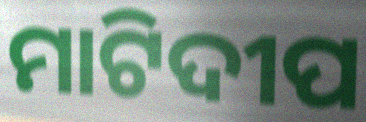
ମାଟିଦୀପ